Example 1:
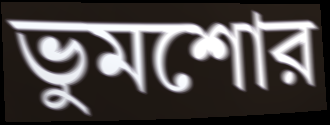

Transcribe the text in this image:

ভুমশোর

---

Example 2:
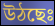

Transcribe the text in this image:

উঠছেঃ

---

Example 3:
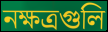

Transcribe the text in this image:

নক্ষত্রগুলি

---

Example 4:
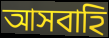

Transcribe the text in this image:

আসবাহি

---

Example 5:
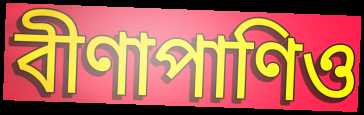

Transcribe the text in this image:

বীণাপাণিও